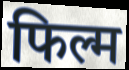
फिल्‍म